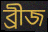
ব্রীজ